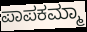
ಪಾಪಕಮ್ಮಾ